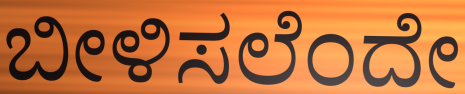
ಬೀಳಿಸಲೆಂದೇ